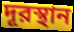
দূরস্থান